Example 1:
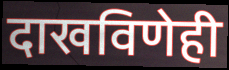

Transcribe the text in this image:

दाखविणेही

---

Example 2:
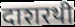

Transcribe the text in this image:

दाशरथी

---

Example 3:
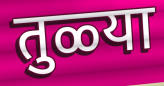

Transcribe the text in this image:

तुळ्या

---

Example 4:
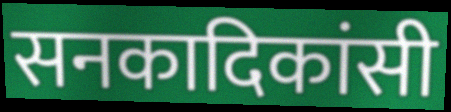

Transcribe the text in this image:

सनकादिकांसी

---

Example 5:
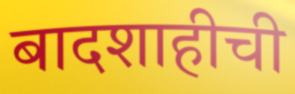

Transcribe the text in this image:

बादशाहीची